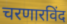
चरणारविंद